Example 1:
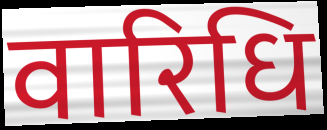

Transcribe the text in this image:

वारिधि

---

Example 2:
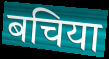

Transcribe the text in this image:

बचिया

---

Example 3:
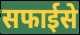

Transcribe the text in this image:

सफाईसे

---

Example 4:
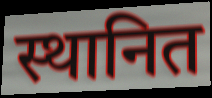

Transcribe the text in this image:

स्थानित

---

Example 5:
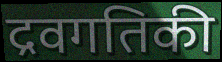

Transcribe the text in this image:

द्रवगतिकी